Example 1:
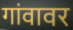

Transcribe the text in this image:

गांवावर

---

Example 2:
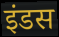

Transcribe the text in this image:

इंडस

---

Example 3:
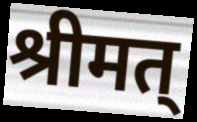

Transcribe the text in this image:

श्रीमत्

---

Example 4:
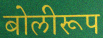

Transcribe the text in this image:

बोलीरूप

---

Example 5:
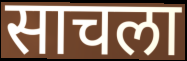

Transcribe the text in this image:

साचला